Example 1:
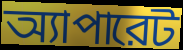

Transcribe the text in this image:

অ্যাপারেট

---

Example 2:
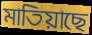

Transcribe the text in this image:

মাতিয়াছে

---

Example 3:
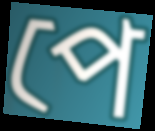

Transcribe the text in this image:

পে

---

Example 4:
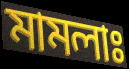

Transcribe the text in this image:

মামলাঃ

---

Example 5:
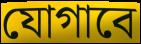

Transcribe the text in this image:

যোগাবে